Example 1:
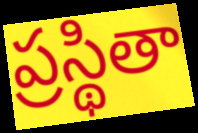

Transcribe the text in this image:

ప్రస్థితా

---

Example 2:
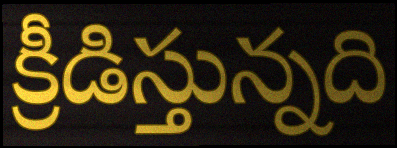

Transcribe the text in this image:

క్రీడిస్తున్నది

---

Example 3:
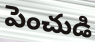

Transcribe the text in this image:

పెంచుడి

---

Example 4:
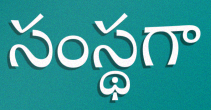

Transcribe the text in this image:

సంస్థగా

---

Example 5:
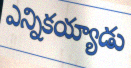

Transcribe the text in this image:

ఎన్నికయ్యాడు